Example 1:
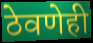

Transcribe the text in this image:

ठेवणेही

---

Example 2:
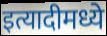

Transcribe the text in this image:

इत्यादीमध्ये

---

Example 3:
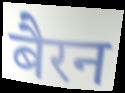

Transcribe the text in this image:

बैरन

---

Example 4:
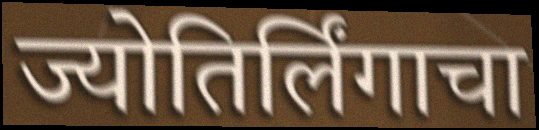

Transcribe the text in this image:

ज्योतिर्लिंगाचा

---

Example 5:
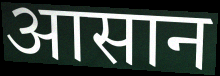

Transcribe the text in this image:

आसान